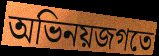
অভিনয়জগতে